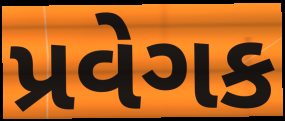
પ્રવેગક